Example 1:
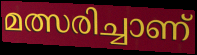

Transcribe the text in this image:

മത്സരിച്ചാണ്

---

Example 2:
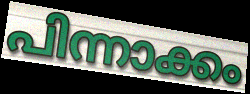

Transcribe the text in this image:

പിന്നാക്കം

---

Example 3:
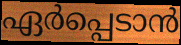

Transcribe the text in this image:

ഏർപ്പെടാൻ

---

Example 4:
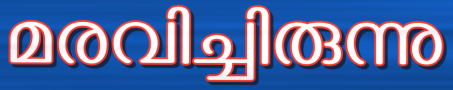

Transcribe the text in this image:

മരവിച്ചിരുന്നു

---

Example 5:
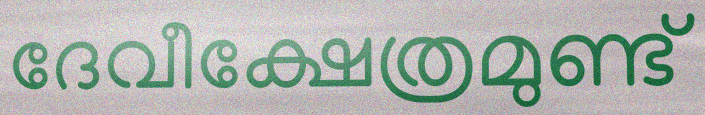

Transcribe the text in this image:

ദേവീക്ഷേത്രമുണ്ട്